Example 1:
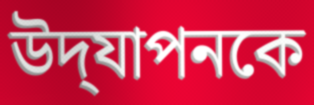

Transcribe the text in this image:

উদ্‌যাপনকে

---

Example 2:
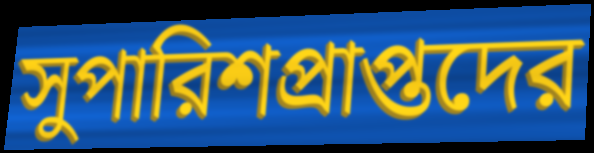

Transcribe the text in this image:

সুপারিশপ্রাপ্তদের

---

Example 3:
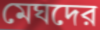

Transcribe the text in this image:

মেঘদের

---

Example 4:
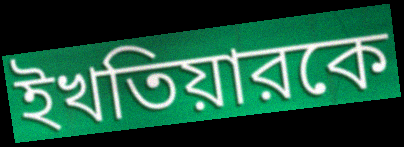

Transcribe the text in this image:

ইখতিয়ারকে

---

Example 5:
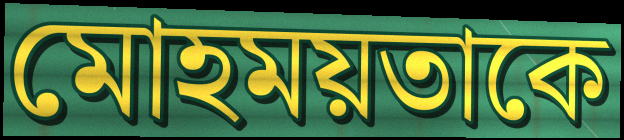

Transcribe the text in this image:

মোহময়তাকে